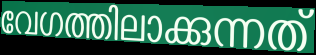
വേഗത്തിലാക്കുന്നത്